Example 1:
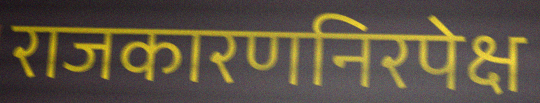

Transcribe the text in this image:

राजकारणनिरपेक्ष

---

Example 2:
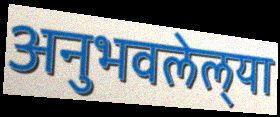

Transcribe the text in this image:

अनुभवलेल्या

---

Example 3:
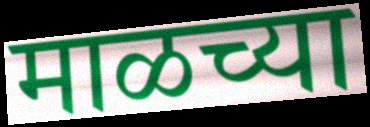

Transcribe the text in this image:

माळच्या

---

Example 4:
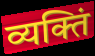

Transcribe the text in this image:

व्यक्तिं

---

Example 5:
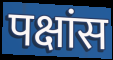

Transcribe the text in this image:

पक्षांस